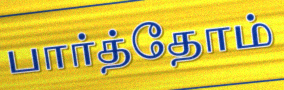
பார்த்தோம்